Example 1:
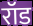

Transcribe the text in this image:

रॉड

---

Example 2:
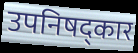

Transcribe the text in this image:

उपनिषद्कार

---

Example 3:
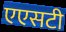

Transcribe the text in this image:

एएसटी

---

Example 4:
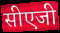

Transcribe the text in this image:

सीएजी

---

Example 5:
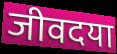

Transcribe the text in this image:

जीवदया